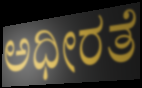
ಅಧೀರತೆ